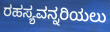
ರಹಸ್ಯವನ್ನರಿಯಲು